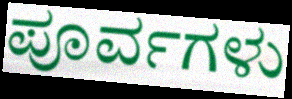
ಪೂರ್ವಗಳು